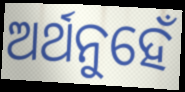
ଅର୍ଥନୁହେଁ